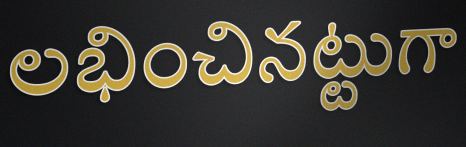
లభించినట్టుగా